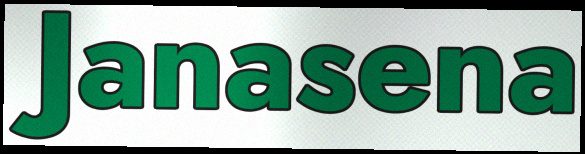
Janasena